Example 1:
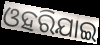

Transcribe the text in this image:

ଓହରିଯାଇ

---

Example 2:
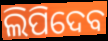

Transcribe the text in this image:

ଲିପିଦେବ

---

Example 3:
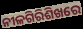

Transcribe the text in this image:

ନୀଳଗିରିଶିଖରେ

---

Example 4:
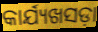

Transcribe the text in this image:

କାର୍ଯ୍ୟଖସଡ଼ା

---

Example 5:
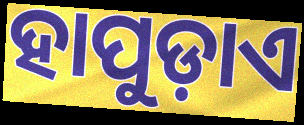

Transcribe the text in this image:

ହାପୁଡ଼ାଏ